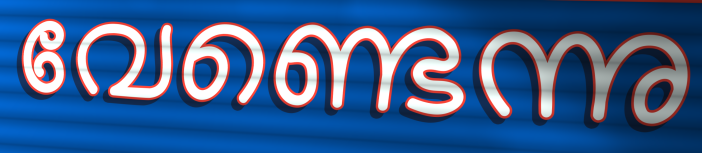
വേണ്ടെന്നു